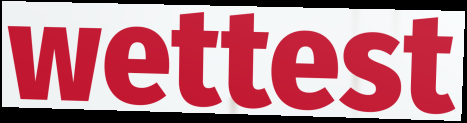
wettest